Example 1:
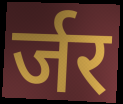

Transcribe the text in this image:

र्जर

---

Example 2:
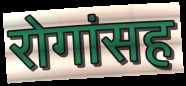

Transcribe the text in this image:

रोगांसह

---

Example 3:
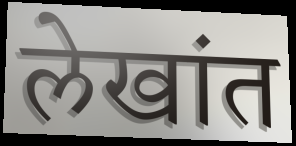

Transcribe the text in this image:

लेखांत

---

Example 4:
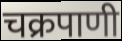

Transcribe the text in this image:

चक्रपाणी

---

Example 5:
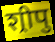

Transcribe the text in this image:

श्रीपु